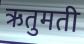
ऋतुमती